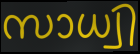
സാധ്വി